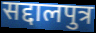
सद्दालपुत्र